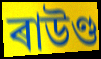
ৰাউণ্ড